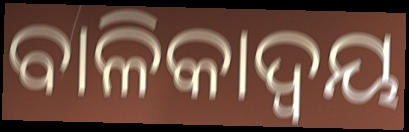
ବାଳିକାଦ୍ୱୟ